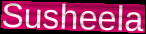
Susheela